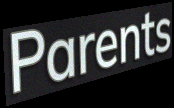
Parents